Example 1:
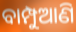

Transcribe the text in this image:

ବାମ୍ପୁଆଣି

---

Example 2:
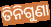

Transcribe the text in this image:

ତିନିଗୁଣା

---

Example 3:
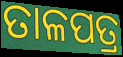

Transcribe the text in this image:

ତାଳପତ୍ର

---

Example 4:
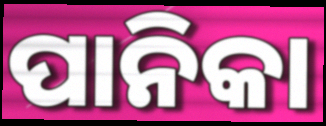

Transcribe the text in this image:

ପାନିକା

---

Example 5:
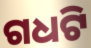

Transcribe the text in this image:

ଗଧଟି